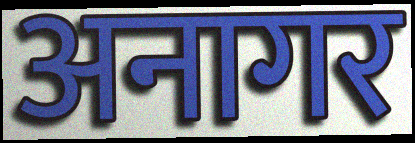
अनागर